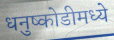
धनुष्कोडीमध्ये